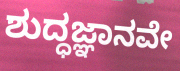
ಶುದ್ಧಜ್ಞಾನವೇ